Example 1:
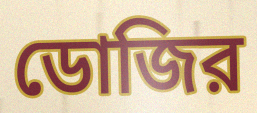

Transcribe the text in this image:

ডোজির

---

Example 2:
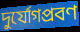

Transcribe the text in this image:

দুর্যোগপ্রবণ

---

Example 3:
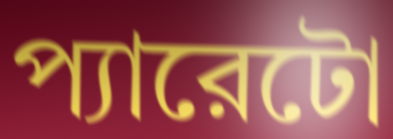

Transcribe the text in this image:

প্যারেটো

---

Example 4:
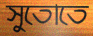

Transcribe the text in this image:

সুতোতে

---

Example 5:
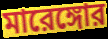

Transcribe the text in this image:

মারেঙ্গোর